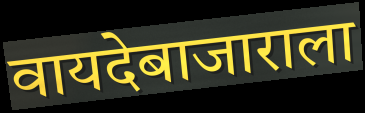
वायदेबाजाराला